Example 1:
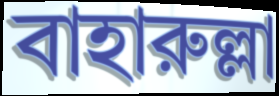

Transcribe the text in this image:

বাহারুল্লা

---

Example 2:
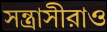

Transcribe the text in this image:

সন্ত্রাসীরাও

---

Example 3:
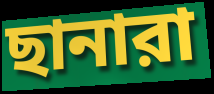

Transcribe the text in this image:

ছানারা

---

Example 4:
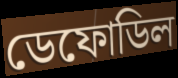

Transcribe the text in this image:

ডেফোডিল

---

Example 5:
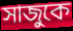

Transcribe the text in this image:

সাজুকে